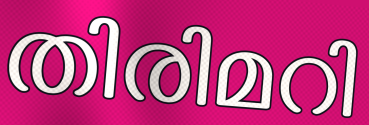
തിരിമറി